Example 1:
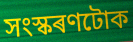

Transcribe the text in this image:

সংস্কৰণটোক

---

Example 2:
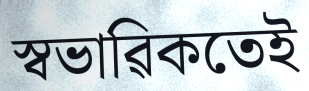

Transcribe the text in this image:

স্বভাৱিকতেই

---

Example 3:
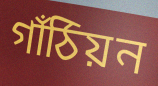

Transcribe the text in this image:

গাঁঠিয়ন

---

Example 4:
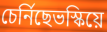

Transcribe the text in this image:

চেৰ্নিছেভস্কিয়ে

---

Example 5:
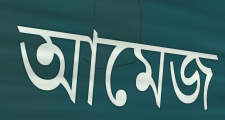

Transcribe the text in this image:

আমেজ